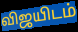
விஜயிடம்